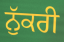
ਨੁੱਕਰੀ